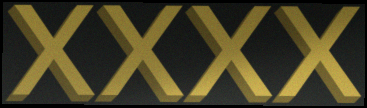
xxxx